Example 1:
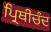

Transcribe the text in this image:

ਪ੍ਰਿਥੀਚੰਦ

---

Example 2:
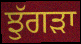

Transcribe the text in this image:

ਝੁੱਗੜਾ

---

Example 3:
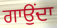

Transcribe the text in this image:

ਗਾਉਂਦਾ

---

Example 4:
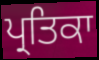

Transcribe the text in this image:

ਪ੍ਰਤਿਕਾ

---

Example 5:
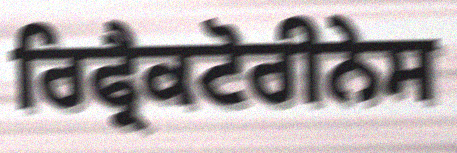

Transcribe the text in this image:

ਰਿਫ੍ਰੈਕਟੋਰੀਨੇਸ